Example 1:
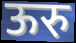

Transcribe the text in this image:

ऊरु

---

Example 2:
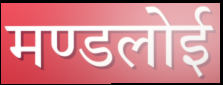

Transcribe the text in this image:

मण्डलोई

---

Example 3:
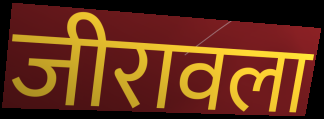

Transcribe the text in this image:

जीरावला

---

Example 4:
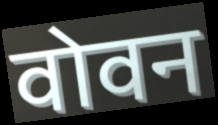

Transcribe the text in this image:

वोवन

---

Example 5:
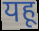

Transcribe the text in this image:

यहू